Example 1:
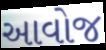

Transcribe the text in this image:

આવોજ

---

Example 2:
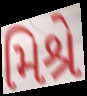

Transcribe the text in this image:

મિશ્રે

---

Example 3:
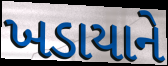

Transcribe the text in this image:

ખડાયાને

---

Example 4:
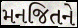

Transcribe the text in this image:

મનજિતને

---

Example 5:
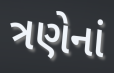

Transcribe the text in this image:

ત્રણેનાં